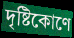
দৃষ্টিকোণে